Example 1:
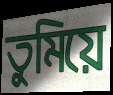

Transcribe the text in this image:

তুমিয়ে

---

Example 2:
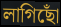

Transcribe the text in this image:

লাগিছোঁ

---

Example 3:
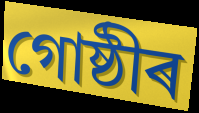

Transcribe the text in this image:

গোষ্ঠীৰ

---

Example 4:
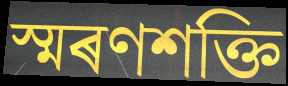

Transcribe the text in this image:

স্মৰণশক্তি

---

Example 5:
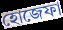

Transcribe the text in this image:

হোজেফা